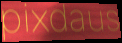
pixdaus